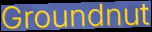
Groundnut